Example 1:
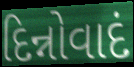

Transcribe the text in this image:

દિન્નોવાદં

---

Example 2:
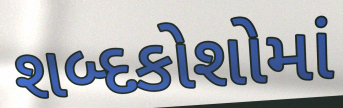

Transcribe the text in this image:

શબ્દકોશોમાં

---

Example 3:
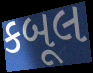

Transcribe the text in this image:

કબૂલ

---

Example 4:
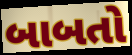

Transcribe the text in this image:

બાબતો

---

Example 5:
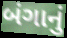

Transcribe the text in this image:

બંગાનું